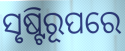
ସୃଷ୍ଟିରୂପରେ